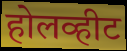
होलव्हीट